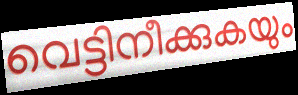
വെട്ടിനീക്കുകയും